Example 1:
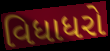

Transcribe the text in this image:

વિધાધરો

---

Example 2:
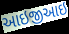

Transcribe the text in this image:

આઇજીઆઇ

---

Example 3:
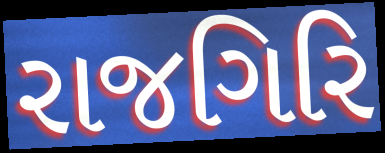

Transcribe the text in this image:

રાજગિરિ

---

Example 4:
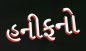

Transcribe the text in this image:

હનીફનો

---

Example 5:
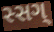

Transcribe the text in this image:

સ્સગ્